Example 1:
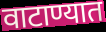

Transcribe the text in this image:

वाटाण्यात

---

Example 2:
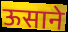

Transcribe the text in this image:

ऊसाने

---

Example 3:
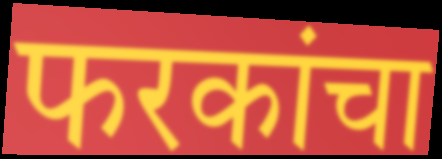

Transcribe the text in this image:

फरकांचा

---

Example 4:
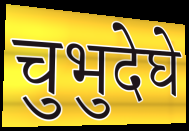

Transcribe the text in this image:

चुभुदेघे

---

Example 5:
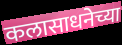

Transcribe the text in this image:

कलासाधनेच्या